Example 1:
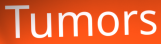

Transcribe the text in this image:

Tumors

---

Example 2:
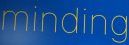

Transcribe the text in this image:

minding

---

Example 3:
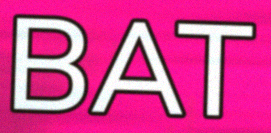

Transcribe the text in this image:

BAT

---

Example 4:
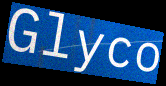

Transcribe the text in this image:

Glyco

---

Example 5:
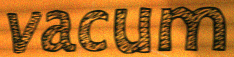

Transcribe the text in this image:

vacum